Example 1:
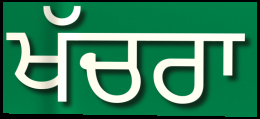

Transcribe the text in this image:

ਖੱਚਰਾ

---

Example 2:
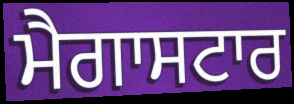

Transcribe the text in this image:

ਮੈਗਾਸਟਾਰ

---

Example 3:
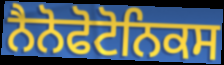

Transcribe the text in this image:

ਨੈਨੋਫੋਟੋਨਿਕਸ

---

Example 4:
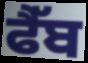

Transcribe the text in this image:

ਫੈੱਬ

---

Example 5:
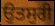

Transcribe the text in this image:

ਉਤਸੁਰੀ